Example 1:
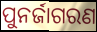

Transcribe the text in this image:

ପୁନର୍ଜାଗରଣ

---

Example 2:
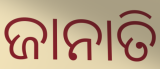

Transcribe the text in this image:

ଜାନାତି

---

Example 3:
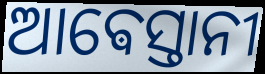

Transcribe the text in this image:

ଆଵେସ୍ତାନୀ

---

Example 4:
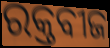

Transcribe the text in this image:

ରକ୍ତବୀଜ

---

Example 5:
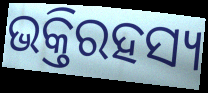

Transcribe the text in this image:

ଭକ୍ତିରହସ୍ୟ